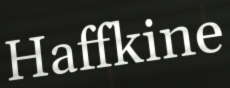
Haffkine